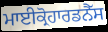
ਮਾਈਕ੍ਰੋਹਾਰਡਨੈੱਸ